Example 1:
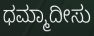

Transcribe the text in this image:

ಧಮ್ಮಾದೀಸು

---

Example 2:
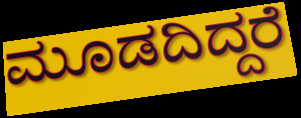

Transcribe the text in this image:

ಮೂಡದಿದ್ದರೆ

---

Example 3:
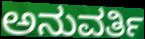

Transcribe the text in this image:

ಅನುವರ್ತಿ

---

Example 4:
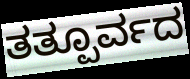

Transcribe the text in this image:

ತತ್ಪೂರ್ವದ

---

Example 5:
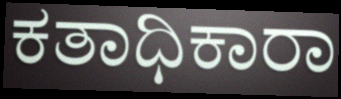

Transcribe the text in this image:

ಕತಾಧಿಕಾರಾ